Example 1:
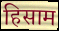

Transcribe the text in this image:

हिसाम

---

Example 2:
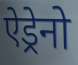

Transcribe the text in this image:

ऐड्रेनो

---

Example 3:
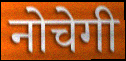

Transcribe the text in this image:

नोचेगी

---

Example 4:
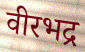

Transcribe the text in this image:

वीरभद्र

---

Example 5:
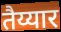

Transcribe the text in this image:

तैय्यार